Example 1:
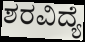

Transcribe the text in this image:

ಶರವಿದ್ಯೆ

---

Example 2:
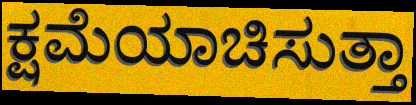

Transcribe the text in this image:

ಕ್ಷಮೆಯಾಚಿಸುತ್ತಾ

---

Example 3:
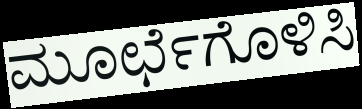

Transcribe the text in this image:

ಮೂರ್ಛೆಗೊಳಿಸಿ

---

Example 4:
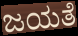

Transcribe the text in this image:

ಜಯತೆ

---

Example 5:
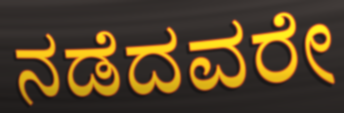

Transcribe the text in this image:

ನಡೆದವರೇ